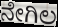
ನೇಗಿಲ